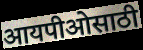
आयपीओसाठी